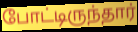
போட்டிருந்தார்